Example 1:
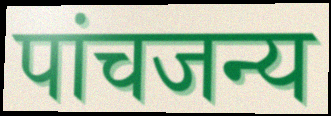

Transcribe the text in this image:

पांचजन्य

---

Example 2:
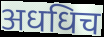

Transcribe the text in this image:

अधधिच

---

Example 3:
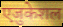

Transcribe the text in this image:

एजुकेशल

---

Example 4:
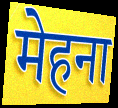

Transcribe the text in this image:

मेहना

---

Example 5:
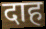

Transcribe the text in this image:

दाह